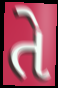
તે